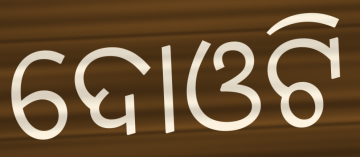
ଦୋଓଟି